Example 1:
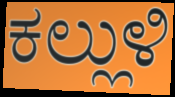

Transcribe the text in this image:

ಕಲ್ಲುಳಿ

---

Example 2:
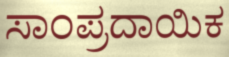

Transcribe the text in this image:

ಸಾಂಪ್ರದಾಯಿಕ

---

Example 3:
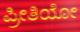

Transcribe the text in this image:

ಪ್ರೀತಿಯೋ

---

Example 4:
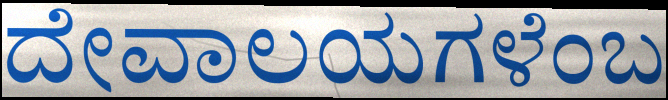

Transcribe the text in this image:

ದೇವಾಲಯಗಳೆಂಬ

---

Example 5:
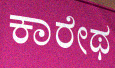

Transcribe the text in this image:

ಕಾರೇಥ